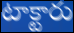
టాక్టారు